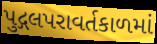
પુદ્ગલપરાવર્તકાળમાં